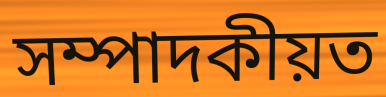
সম্পাদকীয়ত